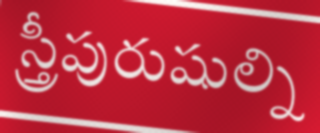
స్త్రీపురుషుల్ని